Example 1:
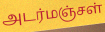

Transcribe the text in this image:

அடர்மஞ்சள்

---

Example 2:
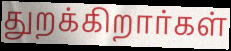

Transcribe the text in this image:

துறக்கிறார்கள்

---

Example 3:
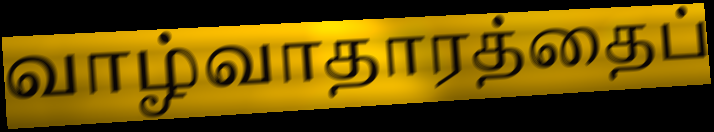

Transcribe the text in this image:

வாழ்வாதாரத்தைப்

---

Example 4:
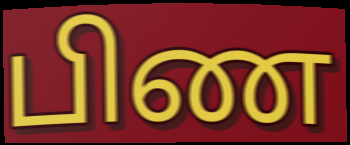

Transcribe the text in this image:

பிண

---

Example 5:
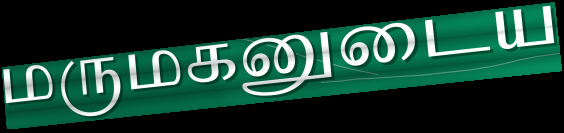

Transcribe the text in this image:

மருமகனுடைய